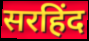
सरहिंद